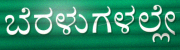
ಬೆರಳುಗಳಲ್ಲೇ